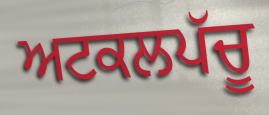
ਅਟਕਲਪੱਚੂ